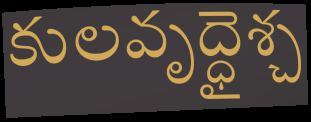
కులవృద్ధైశ్చ